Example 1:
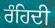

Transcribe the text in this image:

ਰੰਹਿਦੀ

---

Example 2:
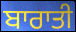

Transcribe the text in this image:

ਬਾਰਾਤੀ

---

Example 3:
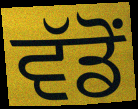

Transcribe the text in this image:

ਵੱਡੋਂ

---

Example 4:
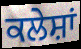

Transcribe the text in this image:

ਕਲੇਸ਼ਾਂ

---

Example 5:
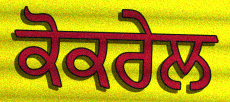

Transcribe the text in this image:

ਕੋਕਰੇਲ